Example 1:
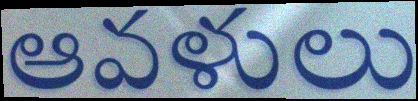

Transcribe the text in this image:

ఆవళులు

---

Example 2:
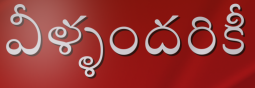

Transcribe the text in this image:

వీళ్ళందరికీ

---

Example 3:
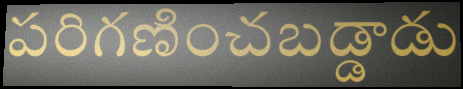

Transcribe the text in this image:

పరిగణించబడ్డాడు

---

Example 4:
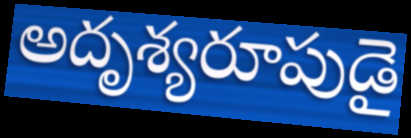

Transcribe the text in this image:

అదృశ్యరూపుడై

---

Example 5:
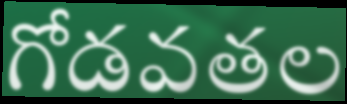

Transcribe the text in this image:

గోడవతల